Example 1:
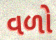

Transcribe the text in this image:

વળો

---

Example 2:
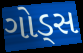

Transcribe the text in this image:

ગોડ્સ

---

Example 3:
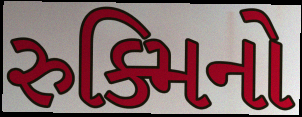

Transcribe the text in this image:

રુક્મિનો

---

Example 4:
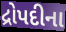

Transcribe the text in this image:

દ્રોપદીના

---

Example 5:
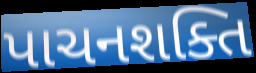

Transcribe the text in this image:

પાચનશક્તિ